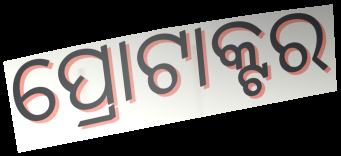
ପ୍ରୋଟାକ୍ଟର